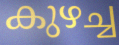
കുഴച്ച